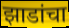
झाडांचा